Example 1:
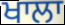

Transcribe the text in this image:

ਖਾਲਾ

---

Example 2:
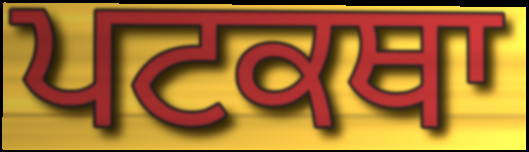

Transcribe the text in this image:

ਪਟਕਥਾ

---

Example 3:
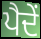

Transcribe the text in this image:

ਪੈਦੇਂ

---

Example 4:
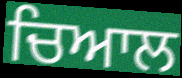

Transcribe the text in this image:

ਚਿਆਲ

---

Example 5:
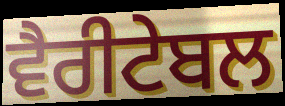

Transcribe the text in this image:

ਵੈਰੀਟੇਬਲ